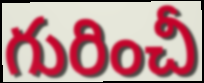
గురించీ